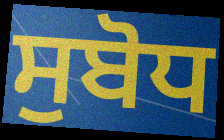
ਸੁਬੋਧ